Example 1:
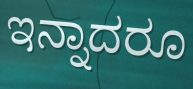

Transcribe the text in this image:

ಇನ್ನಾದರೂ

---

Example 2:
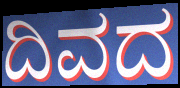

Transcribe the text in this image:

ದಿವದ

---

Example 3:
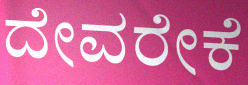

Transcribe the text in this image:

ದೇವರೇಕೆ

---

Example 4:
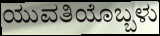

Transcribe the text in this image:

ಯುವತಿಯೊಬ್ಬಳು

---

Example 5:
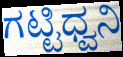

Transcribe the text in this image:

ಗಟ್ಟಿಧ್ವನಿ